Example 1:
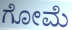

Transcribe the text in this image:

ಗೋಮೆ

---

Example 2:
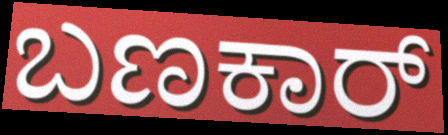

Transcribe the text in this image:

ಬಣಕಾರ್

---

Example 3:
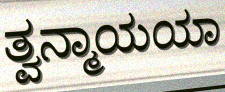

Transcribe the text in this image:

ತ್ವನ್ಮಾಯಯಾ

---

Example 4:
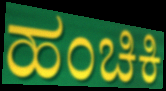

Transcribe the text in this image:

ಹಂಚಿಕಿ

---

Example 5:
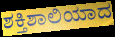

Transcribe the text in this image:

ಶಕ್ತಿಶಾಲಿಯಾದ